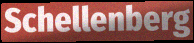
Schellenberg